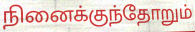
நினைக்குந்தோறும்